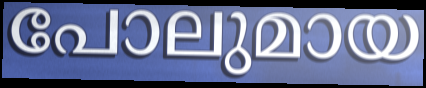
പോലുമായ